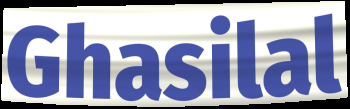
Ghasilal